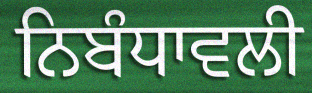
ਨਿਬੰਧਾਵਲੀ